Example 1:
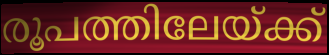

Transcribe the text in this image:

രൂപത്തിലേയ്ക്ക്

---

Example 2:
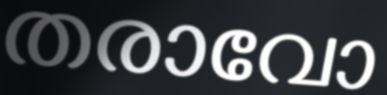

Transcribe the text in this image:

തരാവോ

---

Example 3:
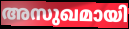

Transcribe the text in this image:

അസുഖമായി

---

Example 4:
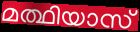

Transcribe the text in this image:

മത്ഥിയാസ്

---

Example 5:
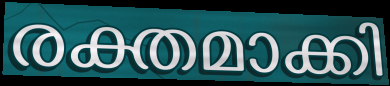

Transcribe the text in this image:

രക്തമാക്കി